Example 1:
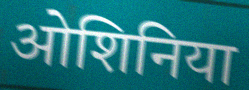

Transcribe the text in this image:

ओशिनिया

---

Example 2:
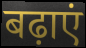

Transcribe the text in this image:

बढ़ाएं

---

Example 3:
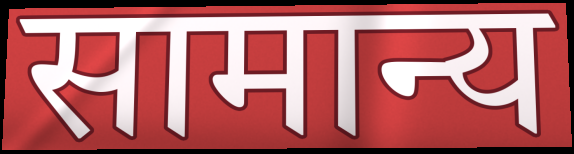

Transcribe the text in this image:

सामान्य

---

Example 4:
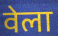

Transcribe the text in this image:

वेला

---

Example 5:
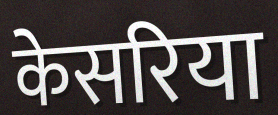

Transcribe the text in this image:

केसरिया